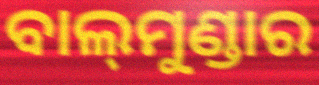
ବାଲ୍‍ମୁଣ୍ଡାର